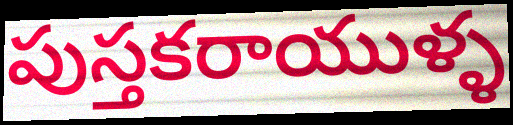
పుస్తకరాయుళ్ళ